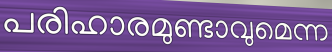
പരിഹാരമുണ്ടാവുമെന്ന